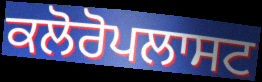
ਕਲੋਰੋਪਲਾਸਟ